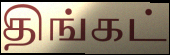
திங்கட்